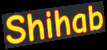
Shihab